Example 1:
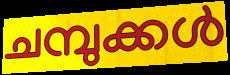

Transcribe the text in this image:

ചമ്പുക്കൾ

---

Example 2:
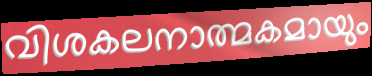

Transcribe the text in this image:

വിശകലനാത്മകമായും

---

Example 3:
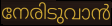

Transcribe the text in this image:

നേരിടുവാൻ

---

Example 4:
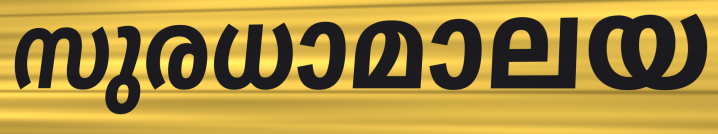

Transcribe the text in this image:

സുരധാമാലയ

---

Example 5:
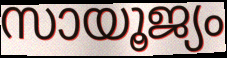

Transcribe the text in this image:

സായൂജ്യം